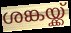
ശങ്കയ്ക്ക്